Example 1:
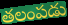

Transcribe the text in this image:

తలంపడు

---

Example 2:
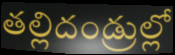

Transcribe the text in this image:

తల్లిదండ్రుల్లో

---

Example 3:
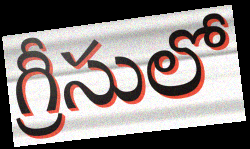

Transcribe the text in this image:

గ్రీసులో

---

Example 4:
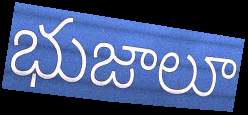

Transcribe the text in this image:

భుజాలూ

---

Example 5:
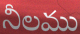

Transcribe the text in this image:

నీలము